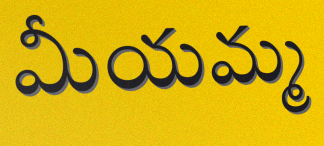
మీయమ్మ